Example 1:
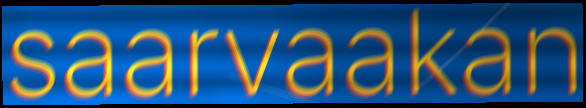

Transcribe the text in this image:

saarvaakan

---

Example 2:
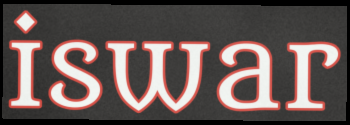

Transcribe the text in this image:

iswar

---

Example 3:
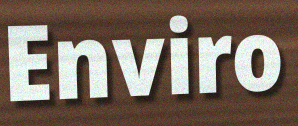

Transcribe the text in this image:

Enviro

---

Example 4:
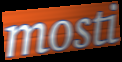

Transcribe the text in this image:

mosti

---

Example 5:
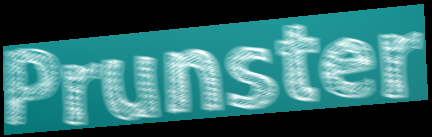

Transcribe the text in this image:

Prunster